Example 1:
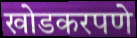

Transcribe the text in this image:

खोडकरपणे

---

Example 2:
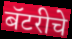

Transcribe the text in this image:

बॅटरीचे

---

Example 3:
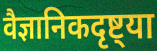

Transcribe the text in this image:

वैज्ञानिकदृष्ट्या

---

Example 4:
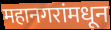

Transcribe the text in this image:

महानगरांमधून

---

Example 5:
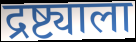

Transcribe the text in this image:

द्रष्ट्याला